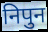
निपुन